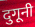
दुगूनी